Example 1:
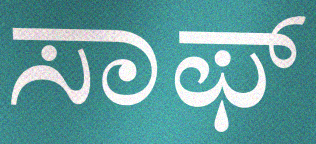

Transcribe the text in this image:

ಸಾಫ್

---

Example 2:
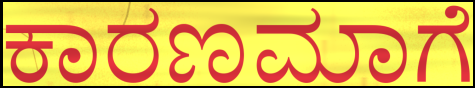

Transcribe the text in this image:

ಕಾರಣಮಾಗೆ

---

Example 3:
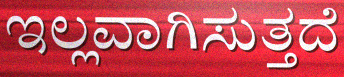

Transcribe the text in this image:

ಇಲ್ಲವಾಗಿಸುತ್ತದೆ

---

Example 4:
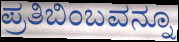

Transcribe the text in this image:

ಪ್ರತಿಬಿಂಬವನ್ನೂ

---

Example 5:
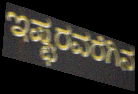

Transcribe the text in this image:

ಇಷ್ಟರವರೆಗಿನ